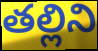
తల్లిని